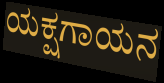
ಯಕ್ಷಗಾಯನ